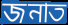
জনাত